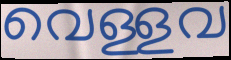
വെള്ളവ